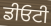
ਡੀਓਟੀ